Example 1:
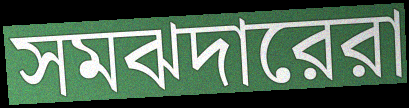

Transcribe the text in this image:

সমঝদারেরা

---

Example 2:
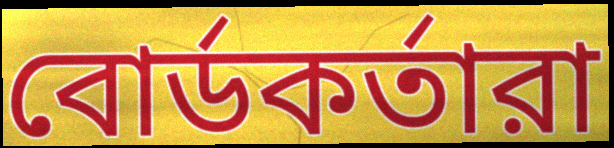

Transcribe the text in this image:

বোর্ডকর্তারা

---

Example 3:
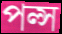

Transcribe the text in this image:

পল্স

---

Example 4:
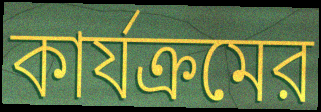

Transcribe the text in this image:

কার্যক্রমের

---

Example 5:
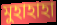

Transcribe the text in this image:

মুহাহাহা